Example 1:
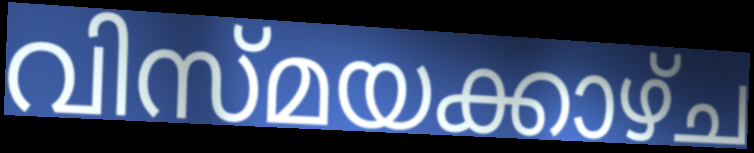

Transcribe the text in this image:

വിസ്മയക്കാഴ്ച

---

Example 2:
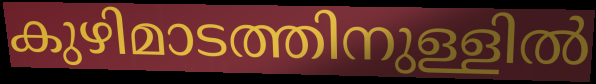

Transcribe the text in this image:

കുഴിമാടത്തിനുള്ളിൽ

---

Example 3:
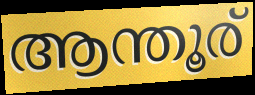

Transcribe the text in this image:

ആന്തൂര്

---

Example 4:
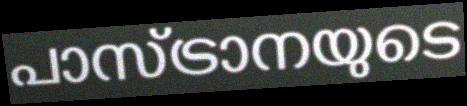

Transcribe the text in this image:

പാസ്ട്രാനയുടെ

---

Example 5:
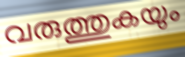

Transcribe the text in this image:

വരുത്തുകയും